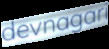
devnagari